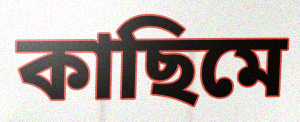
কাছিমে